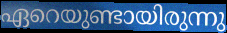
ഏറെയുണ്ടായിരുന്നു